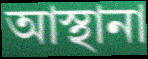
আস্থানা